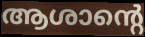
ആശാന്റെ